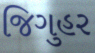
જિગુહર